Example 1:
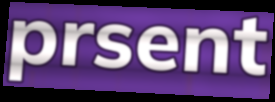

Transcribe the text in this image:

prsent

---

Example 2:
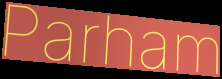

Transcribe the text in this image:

Parham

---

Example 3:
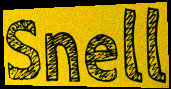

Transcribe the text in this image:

Snell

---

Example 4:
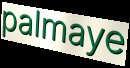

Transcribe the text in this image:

palmaye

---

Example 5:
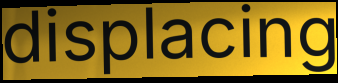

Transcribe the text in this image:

displacing